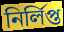
নিৰ্লিপ্ত